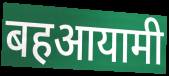
बहआयामी